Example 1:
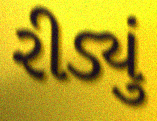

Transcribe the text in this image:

રીડ્યું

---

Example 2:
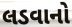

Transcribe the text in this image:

લડવાનો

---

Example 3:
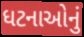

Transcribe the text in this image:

ધટનાઓનું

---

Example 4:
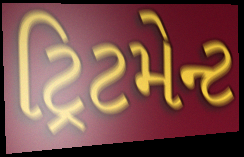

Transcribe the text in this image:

ટ્રિટમેન્ટ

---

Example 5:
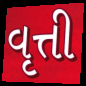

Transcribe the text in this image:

વૃત્તી